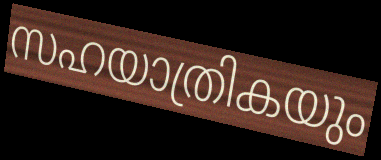
സഹയാത്രികയും